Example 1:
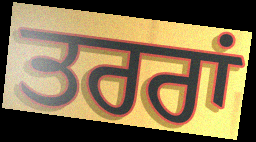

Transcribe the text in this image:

ਤਰਰਾਂ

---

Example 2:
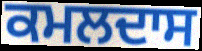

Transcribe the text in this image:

ਕਮਲਦਾਸ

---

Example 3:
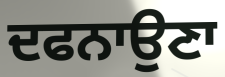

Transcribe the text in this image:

ਦਫਨਾਉਣਾ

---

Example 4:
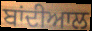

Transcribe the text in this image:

ਬਾਂਦੀਆਲ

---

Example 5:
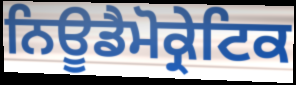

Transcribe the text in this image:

ਨਿਊਡੈਮੋਕ੍ਰੇਟਿਕ